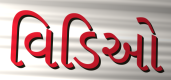
વિડિઓ